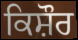
ਕਿਸ਼ੌਰ